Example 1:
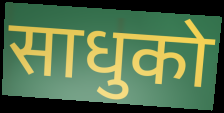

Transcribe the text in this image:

साधुको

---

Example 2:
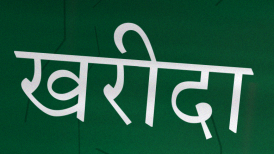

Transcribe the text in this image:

खरीदा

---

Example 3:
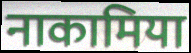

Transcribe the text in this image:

नाकामिया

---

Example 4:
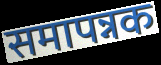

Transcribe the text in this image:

समापन्नक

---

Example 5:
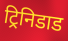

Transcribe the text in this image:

ट्रिनिडाड